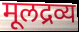
मूलद्रव्य